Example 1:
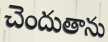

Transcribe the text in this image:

చెందుతాను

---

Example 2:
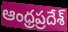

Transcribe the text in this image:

ఆంధ్రప్రదేశ్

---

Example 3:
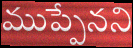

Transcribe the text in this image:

ముప్పేనని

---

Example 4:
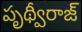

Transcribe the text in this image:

పృథ్వీరాజ్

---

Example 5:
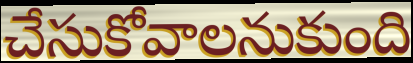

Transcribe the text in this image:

చేసుకోవాలనుకుంది